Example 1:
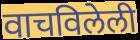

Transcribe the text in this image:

वाचविलेली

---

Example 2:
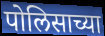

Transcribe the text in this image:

पोलिसाच्या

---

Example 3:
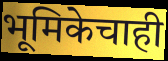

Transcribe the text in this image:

भूमिकेचाही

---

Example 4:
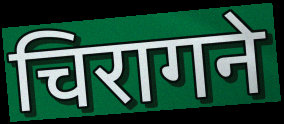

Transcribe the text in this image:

चिरागने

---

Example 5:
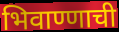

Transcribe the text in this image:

भिवाण्णाची